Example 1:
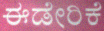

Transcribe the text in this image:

ಈಡೇರಿಕೆ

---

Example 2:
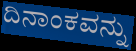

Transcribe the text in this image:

ದಿನಾಂಕವನ್ನು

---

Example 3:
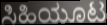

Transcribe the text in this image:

ಸಿಹಿಯೂಟ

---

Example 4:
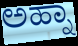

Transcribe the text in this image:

ಅಹ್ನಾ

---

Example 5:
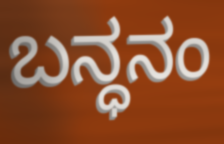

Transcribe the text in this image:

ಬನ್ಧನಂ